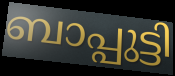
ബാപ്പുട്ടി